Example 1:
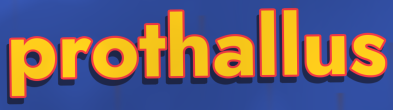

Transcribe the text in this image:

prothallus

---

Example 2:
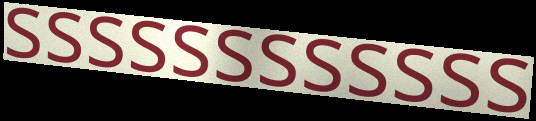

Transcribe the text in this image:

ssssssssssss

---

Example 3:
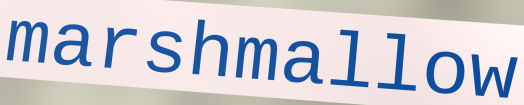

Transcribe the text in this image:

marshmallow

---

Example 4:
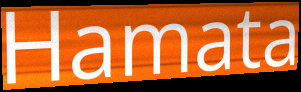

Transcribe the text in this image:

Hamata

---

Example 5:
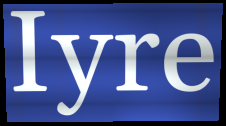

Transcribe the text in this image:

Iyre